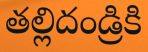
తల్లిదండ్రికి